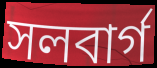
সলবার্গ